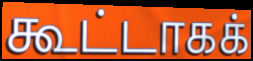
கூட்டாகக்